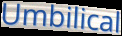
Umbilical